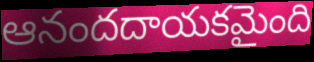
ఆనందదాయకమైంది